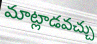
మాట్లాడవచ్చు